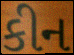
કીન